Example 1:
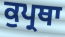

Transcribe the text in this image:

ਕੁਪ੍ਰਥਾ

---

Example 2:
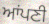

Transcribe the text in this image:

ਆਂਪਣੀ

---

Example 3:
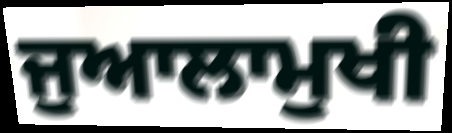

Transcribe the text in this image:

ਜੁਆਲਾਮੁਖੀ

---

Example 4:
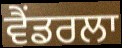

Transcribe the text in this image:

ਵੈਂਡਰਲਾ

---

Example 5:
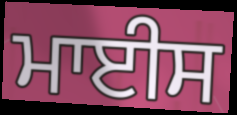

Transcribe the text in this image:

ਮਾਈਸ